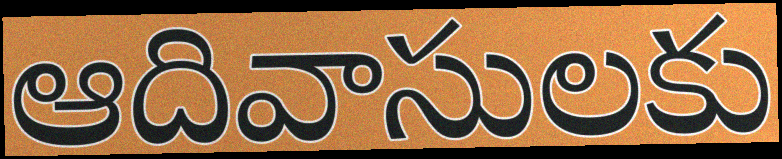
ఆదివాసులకు